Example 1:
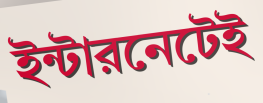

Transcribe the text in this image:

ইন্টারনেটেই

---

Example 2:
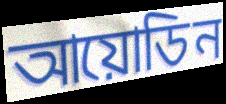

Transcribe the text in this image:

আয়োডিন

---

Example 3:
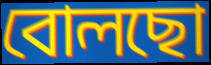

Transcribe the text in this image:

বোলছো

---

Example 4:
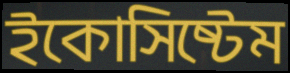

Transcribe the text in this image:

ইকোসিষ্টেম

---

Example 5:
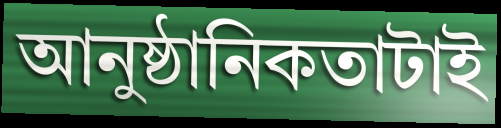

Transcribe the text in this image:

আনুষ্ঠানিকতাটাই